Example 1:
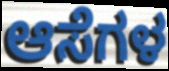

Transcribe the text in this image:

ಆಸೆಗಳ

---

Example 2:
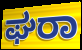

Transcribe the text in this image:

ಘರಾ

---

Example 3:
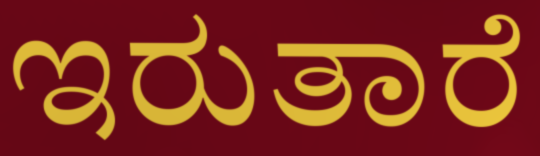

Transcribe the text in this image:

ಇರುತಾರೆ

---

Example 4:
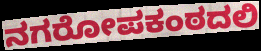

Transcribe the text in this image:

ನಗರೋಪಕಂಠದಲಿ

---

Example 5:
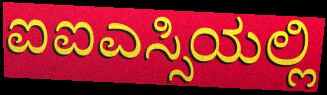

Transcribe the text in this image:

ಐಐಎಸ್ಸಿಯಲ್ಲಿ